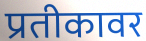
प्रतीकावर